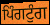
ਪਿੰਗਟੁੰਗ